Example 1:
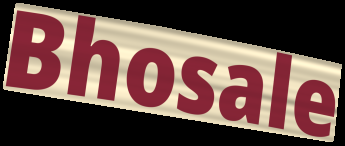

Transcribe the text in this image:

Bhosale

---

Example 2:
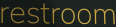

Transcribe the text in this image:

restroom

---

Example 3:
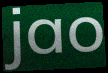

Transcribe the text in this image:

jao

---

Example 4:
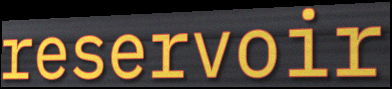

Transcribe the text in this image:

reservoir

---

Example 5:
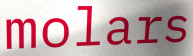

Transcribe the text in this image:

molars